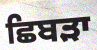
ਛਿਬੜਾ